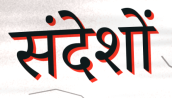
संदेशों